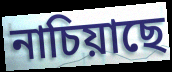
নাচিয়াছে